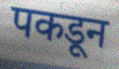
पकडून